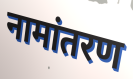
नामांतरण